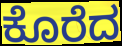
ಕೊರೆದ